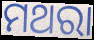
ମଥରା